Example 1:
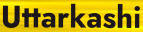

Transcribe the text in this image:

Uttarkashi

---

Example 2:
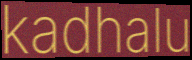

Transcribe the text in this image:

kadhalu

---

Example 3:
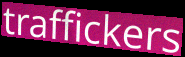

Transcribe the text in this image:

traffickers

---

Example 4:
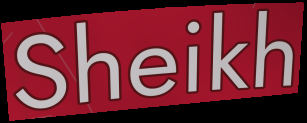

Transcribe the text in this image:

Sheikh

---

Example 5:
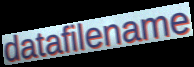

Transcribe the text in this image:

datafilename